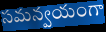
సమన్వయంగా